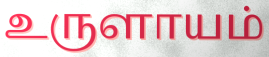
உருளாயம்